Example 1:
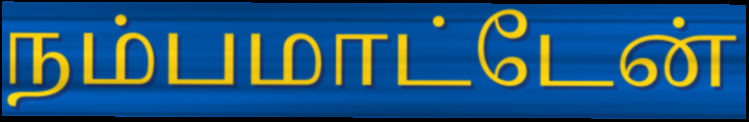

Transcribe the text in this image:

நம்பமாட்டேன்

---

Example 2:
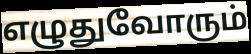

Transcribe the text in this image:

எழுதுவோரும்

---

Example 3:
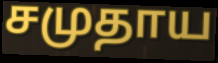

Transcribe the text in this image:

சமுதாய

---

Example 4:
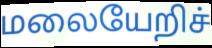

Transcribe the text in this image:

மலையேறிச்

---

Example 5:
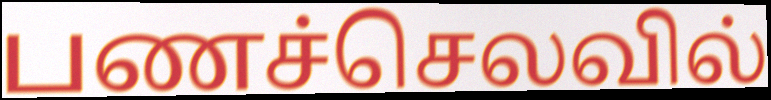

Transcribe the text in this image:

பணச்செலவில்